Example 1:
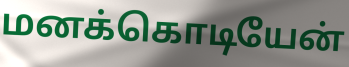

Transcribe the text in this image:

மனக்கொடியேன்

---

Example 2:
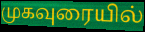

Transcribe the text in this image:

முகவுரையில்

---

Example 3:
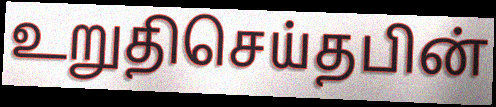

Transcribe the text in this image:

உறுதிசெய்தபின்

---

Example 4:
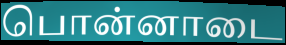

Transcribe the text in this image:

பொன்னாடை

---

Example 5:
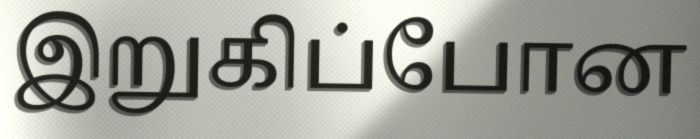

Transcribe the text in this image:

இறுகிப்போன